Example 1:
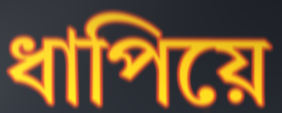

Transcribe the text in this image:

ধাপিয়ে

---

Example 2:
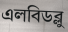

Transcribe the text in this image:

এলবিডব্লু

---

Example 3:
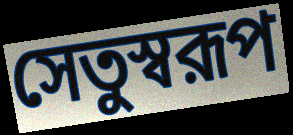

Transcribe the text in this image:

সেতুস্বরূপ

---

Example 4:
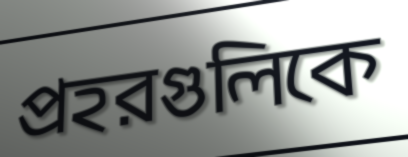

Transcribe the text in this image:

প্রহরগুলিকে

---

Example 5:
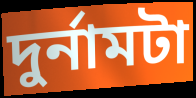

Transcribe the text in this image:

দুর্নামটা